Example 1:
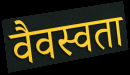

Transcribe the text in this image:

वैवस्वता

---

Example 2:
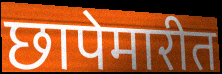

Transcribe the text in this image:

छापेमारीत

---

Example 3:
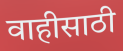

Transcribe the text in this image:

वाहीसाठी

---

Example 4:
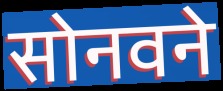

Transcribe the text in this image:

सोनवने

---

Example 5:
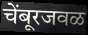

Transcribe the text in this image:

चेंबूरजवळ